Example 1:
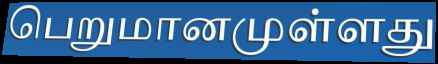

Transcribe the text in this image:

பெறுமானமுள்ளது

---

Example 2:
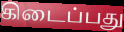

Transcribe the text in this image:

கிடைப்பது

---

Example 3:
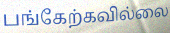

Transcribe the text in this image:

பங்கேற்கவில்லை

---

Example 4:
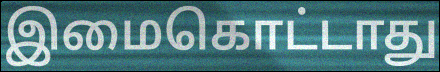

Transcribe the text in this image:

இமைகொட்டாது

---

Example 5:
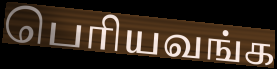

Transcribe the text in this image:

பெரியவங்க